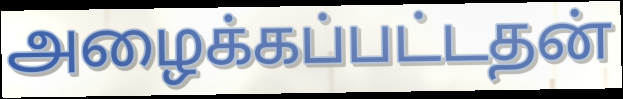
அழைக்கப்பட்டதன்